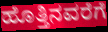
ಹೊತ್ತಿನವರೆಗೆ